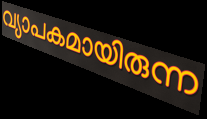
വ്യാപകമായിരുന്ന